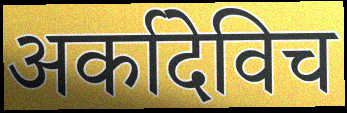
अर्कादेविच